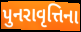
પુનરાવૃત્તિના